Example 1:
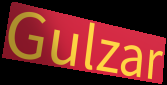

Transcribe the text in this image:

Gulzar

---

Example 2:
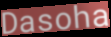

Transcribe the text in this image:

Dasoha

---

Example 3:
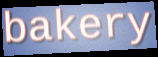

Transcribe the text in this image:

bakery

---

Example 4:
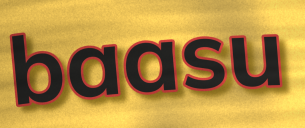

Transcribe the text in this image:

baasu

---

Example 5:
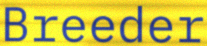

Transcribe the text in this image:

Breeder